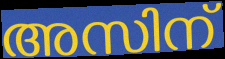
അസിന്